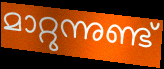
മാറ്റുന്നുണ്ട്